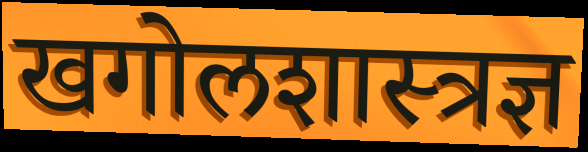
खगोलशास्त्रज्ञ